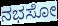
ನಭಸೋ